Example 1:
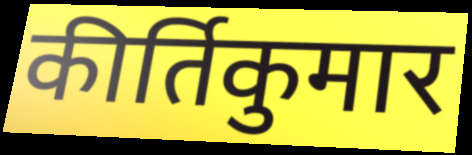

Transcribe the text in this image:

कीर्तिकुमार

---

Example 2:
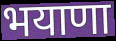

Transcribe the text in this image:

भयाणा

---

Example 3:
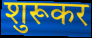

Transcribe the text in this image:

शुरूकर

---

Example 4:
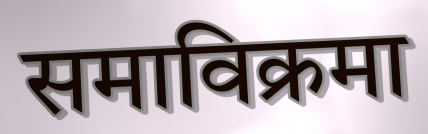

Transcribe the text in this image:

समाविक्रमा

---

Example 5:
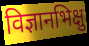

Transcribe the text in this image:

विज्ञानभिक्षु